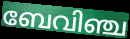
ബേവിഞ്ച